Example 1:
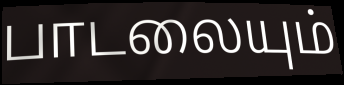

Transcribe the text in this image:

பாடலையும்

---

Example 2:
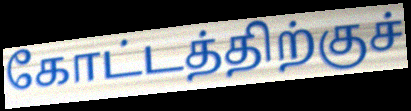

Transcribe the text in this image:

கோட்டத்திற்குச்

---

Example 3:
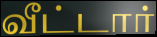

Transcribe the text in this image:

வீட்டார்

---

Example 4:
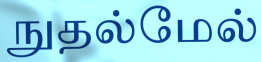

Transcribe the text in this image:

நுதல்மேல்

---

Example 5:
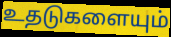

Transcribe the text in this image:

உதடுகளையும்